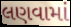
લણવામાં